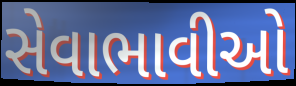
સેવાભાવીઓ